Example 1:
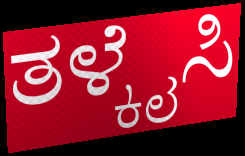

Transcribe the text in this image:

ತಳ್ಕೈಸಿ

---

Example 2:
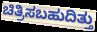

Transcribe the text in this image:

ಚಿತ್ರಿಸಬಹುದಿತ್ತು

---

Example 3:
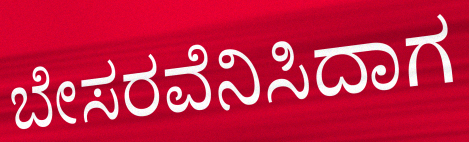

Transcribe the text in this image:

ಬೇಸರವೆನಿಸಿದಾಗ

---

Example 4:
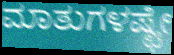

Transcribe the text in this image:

ಮಾತುಗಳಷ್ಟೇ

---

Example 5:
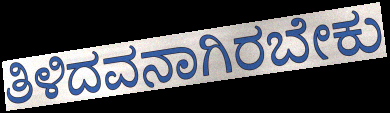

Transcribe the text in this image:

ತಿಳಿದವನಾಗಿರಬೇಕು